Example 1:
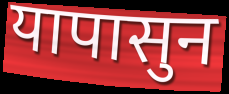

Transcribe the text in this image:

यापासुन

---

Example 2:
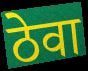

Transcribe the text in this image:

ठेवा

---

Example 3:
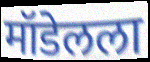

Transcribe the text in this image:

मॉडेलला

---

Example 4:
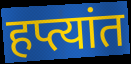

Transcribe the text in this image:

हप्त्यांत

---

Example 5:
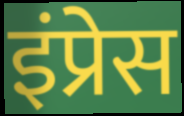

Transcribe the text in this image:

इंप्रेस